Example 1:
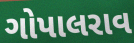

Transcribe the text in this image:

ગોપાલરાવ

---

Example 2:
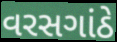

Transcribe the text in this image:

વરસગાંઠે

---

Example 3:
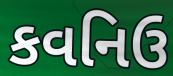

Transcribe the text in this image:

કવનિઉ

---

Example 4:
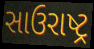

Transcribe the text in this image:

સાઉરાષ્ટ્ર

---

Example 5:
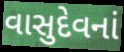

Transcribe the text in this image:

વાસુદેવનાં